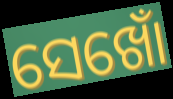
ସେଖୋଁ